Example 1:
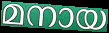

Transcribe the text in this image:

മനായ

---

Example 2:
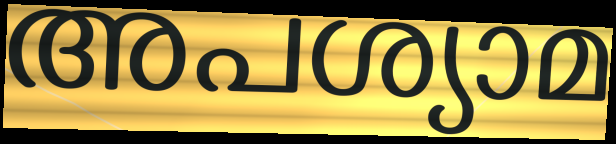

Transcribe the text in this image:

അപശ്യാമ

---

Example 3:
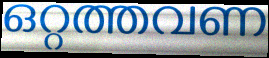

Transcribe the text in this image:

ഒറ്റത്തവണ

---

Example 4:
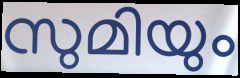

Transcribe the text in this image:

സുമിയും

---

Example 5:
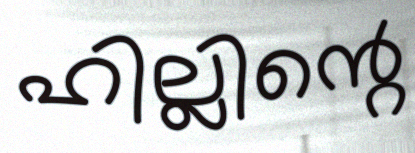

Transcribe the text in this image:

ഹില്ലിന്റെ